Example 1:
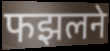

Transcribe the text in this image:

फझलने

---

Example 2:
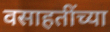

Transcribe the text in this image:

वसाहतींच्या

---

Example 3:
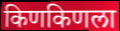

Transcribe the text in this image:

किणकिणला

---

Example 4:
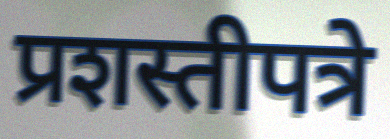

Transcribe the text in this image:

प्रशस्तीपत्रे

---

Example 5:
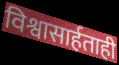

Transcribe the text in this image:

विश्वासार्हताही